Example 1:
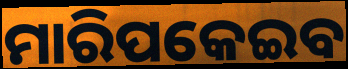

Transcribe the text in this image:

ମାରିପକେଇବ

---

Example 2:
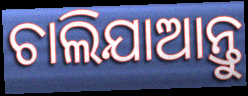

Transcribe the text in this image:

ଚାଲିଯାଆନ୍ତୁ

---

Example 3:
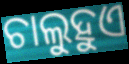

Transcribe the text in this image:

ଚାଲୁହୁଏ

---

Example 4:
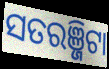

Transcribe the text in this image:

ସତରଞ୍ଜିଟା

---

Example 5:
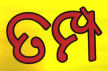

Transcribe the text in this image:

ତମ୍ପ